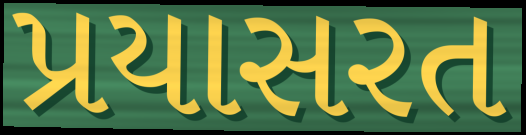
પ્રયાસરત